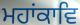
ਮਹਾਂਕਾਵਿ